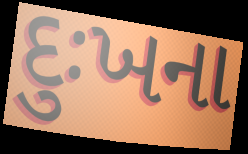
દુઃખના